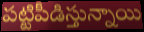
పట్టిపీడిస్తున్నాయి